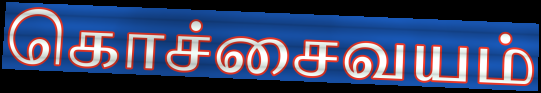
கொச்சைவயம்